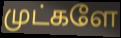
முட்களே